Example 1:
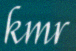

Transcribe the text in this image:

kmr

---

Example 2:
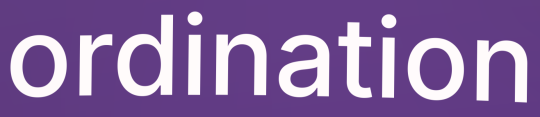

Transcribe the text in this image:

ordination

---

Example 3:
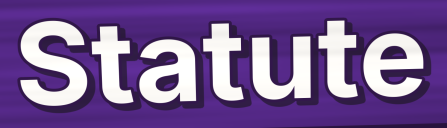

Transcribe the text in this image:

Statute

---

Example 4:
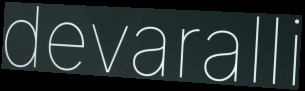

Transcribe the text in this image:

devaralli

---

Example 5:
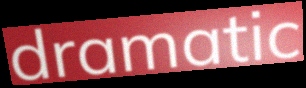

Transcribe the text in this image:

dramatic